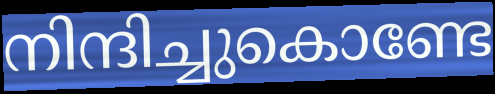
നിന്ദിച്ചുകൊണ്ടേ